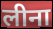
लीना